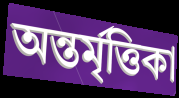
অন্তর্মৃত্তিকা